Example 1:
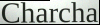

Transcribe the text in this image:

Charcha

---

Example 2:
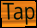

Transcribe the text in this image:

Tap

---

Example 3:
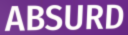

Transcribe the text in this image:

ABSURD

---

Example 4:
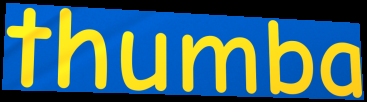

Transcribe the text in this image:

thumba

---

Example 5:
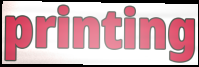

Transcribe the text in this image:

printing